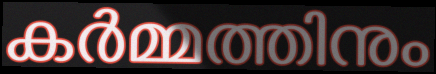
കർമ്മത്തിനും